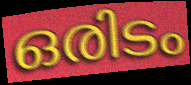
ഒരിടം